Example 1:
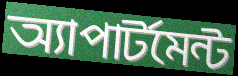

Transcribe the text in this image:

অ্যাপার্টমেন্ট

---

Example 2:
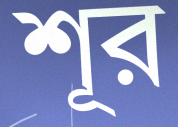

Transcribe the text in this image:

শূর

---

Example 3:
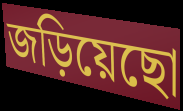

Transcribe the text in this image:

জড়িয়েছো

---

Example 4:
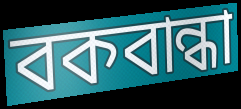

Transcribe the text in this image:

বকবান্ধা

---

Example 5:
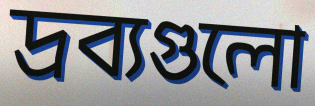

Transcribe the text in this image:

দ্রব্যগুলো